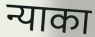
न्याका